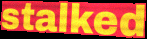
stalked